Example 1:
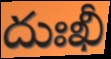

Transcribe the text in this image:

దుఃఖీ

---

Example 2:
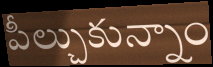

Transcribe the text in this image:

పీల్చుకున్నాం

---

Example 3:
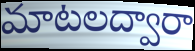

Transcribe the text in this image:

మాటలద్వారా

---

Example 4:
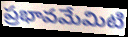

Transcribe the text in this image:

ప్రభావమేమిటి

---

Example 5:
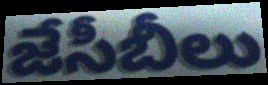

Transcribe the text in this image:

జేసీబీలు